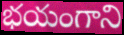
భయంగాని